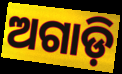
ଅଗାଡ଼ି